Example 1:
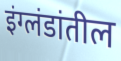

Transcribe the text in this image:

इंग्लंडांतील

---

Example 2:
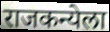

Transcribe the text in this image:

राजकन्येला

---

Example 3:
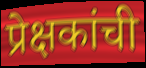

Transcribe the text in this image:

प्रेक्षकांची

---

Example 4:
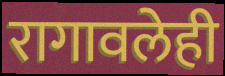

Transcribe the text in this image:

रागावलेही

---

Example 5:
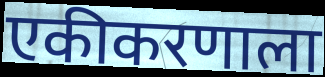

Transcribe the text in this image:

एकीकरणाला